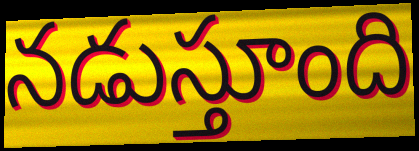
నడుస్తూంది